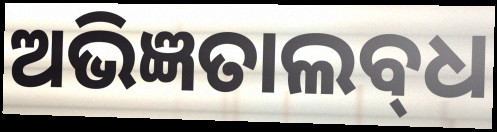
ଅଭିଜ୍ଞତାଲବ୍‌ଧ